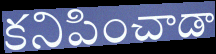
కనిపించాడా